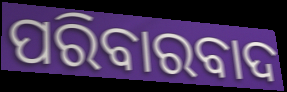
ପରିବାରବାଦ